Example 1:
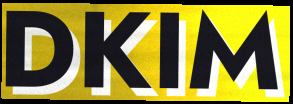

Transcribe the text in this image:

DKIM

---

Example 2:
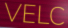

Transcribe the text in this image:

VELC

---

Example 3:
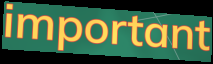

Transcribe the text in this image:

important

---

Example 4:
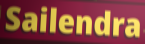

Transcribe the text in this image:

Sailendra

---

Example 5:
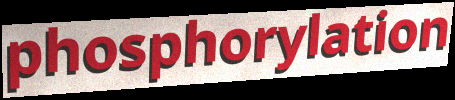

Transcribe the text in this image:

phosphorylation